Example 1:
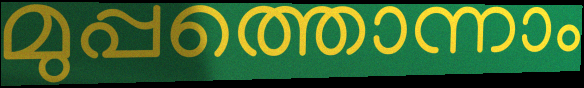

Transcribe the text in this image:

മുപ്പത്തൊന്നാം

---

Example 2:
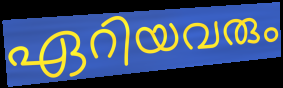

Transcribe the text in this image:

ഏറിയവരും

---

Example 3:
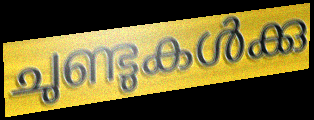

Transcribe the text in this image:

ചുണ്ടുകൾക്കു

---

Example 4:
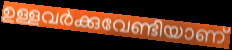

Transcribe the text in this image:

ഉള്ളവർക്കുവേണ്ടിയാണ്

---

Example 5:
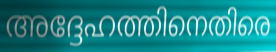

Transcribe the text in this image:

അദ്ദേഹത്തിനെതിരെ